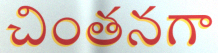
చింతనగా